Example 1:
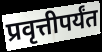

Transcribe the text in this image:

प्रवृत्तीपर्यंत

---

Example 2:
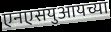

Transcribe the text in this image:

एनएसयुआयच्या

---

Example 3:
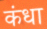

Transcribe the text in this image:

कंधा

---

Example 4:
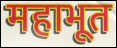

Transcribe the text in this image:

महाभूत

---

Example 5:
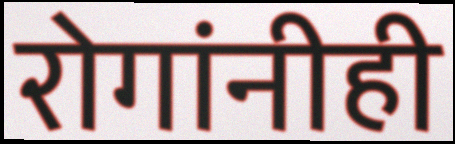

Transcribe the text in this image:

रोगांनीही